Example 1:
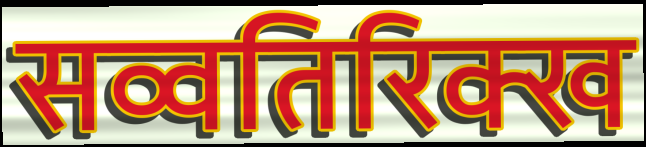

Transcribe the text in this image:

सव्वतिरिक्ख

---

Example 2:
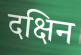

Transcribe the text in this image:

दक्षिन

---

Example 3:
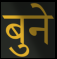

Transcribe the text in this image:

बुने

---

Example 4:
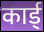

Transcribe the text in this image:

कार्ड्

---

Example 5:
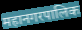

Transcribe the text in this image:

महानगरपालिक